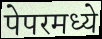
पेपरमध्ये